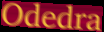
Odedra